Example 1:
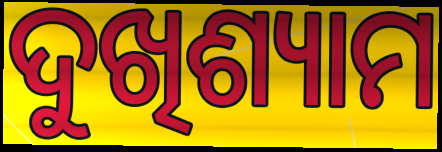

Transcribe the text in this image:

ଦୁଖିଶ୍ୟାମ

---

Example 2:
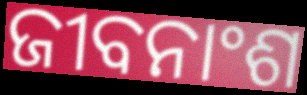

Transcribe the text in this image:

ଜୀବନାଂଶ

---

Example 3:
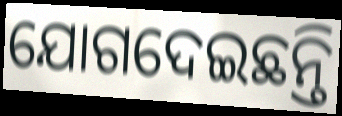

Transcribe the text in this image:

ଯୋଗଦେଇଛନ୍ତି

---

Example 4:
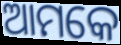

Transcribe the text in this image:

ଆମକେ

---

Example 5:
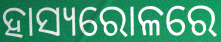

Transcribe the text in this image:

ହାସ୍ୟରୋଳରେ